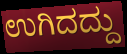
ಉಗಿದದ್ದು